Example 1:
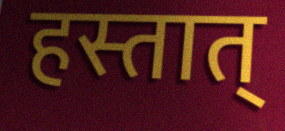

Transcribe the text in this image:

हस्तात्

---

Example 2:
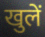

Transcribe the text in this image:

खुलें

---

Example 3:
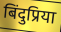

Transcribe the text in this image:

बिंदुप्रिया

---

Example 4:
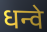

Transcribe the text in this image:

धन्वे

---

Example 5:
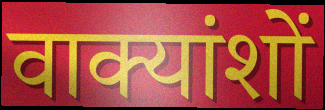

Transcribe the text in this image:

वाक्यांशों